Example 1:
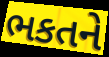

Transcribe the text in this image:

ભકતને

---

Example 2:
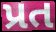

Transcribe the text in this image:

પ્રત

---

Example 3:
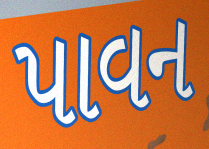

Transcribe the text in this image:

પાવન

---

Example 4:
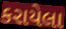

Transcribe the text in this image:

કરાયેલા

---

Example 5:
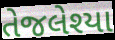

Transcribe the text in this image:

તેજલેશ્યા